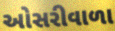
ઓસરીવાળા